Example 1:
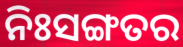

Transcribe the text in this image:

ନିଃସଙ୍ଗତର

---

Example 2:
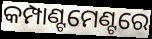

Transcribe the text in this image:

କମ୍ପାଣ୍ଟମେଣ୍ଟରେ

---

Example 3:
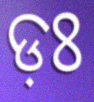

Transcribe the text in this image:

ଡ଼ଃ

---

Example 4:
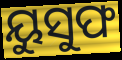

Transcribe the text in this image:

ୟୁସୁଫ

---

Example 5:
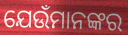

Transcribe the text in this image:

ଯେଉଁମାନଙ୍କର